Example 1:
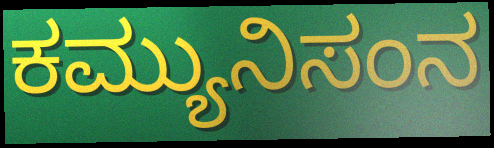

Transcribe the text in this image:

ಕಮ್ಯುನಿಸಂನ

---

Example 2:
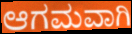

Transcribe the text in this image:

ಆಗಮವಾಗಿ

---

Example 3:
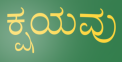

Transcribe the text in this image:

ಕ್ಷಯವು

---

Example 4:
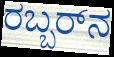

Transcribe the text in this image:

ರಬ್ಬರ್‌ನ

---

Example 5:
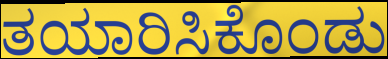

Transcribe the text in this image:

ತಯಾರಿಸಿಕೊಂಡು